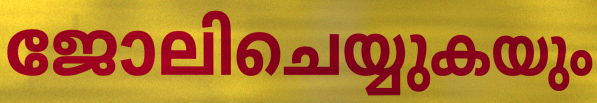
ജോലിചെയ്യുകയും